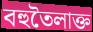
বহুতৈলাক্ত